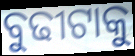
ବୁଢୀଟାକୁ